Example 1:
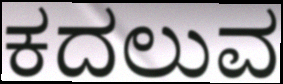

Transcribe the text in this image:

ಕದಲುವ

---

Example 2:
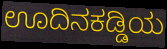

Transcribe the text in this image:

ಊದಿನಕಡ್ಡಿಯ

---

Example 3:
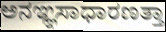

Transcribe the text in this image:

ಅನಞ್ಞಸಾಧಾರಣತ್ತಾ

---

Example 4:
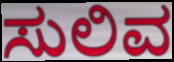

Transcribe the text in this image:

ಸುಲಿವ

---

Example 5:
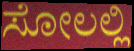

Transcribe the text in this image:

ಸೋಲಲ್ಲಿ